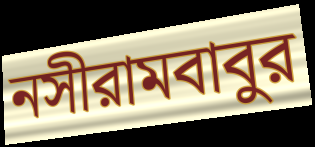
নসীরামবাবুর